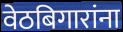
वेठबिगारांना